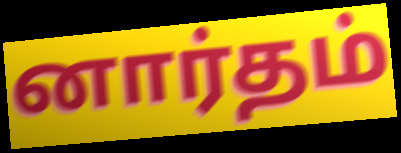
னார்தம்